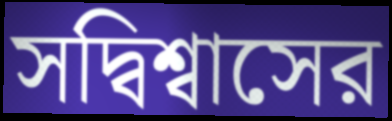
সদ্বিশ্বাসের